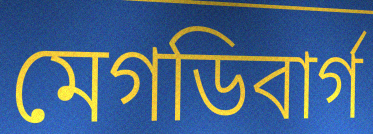
মেগডিবার্গ